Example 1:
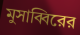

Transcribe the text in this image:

মুসাব্বিরের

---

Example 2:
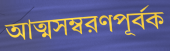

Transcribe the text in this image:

আত্মসম্বরণপূর্বক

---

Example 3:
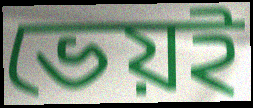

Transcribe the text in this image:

ভেয়ই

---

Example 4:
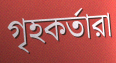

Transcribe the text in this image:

গৃহকর্তারা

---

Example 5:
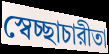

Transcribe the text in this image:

স্বেচ্ছাচারীতা